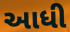
આધી